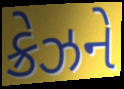
ક્રેઝને